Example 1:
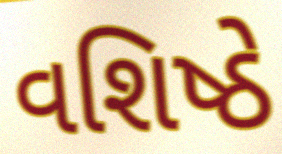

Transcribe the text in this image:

વશિષ્ઠે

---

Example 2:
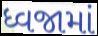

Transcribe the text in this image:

ધ્વજામાં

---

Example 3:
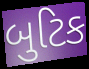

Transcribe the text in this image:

બુટિક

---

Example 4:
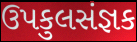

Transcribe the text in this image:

ઉપકુલસંજ્ઞક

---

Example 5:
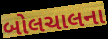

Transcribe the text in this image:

બોલચાલના